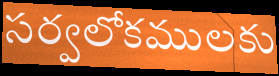
సర్వలోకములకు